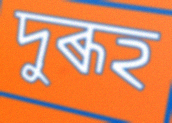
দুৰূহ